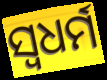
ସ୍ଵଧର୍ମ